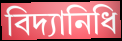
বিদ্যানিধি